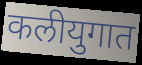
कलीयुगात